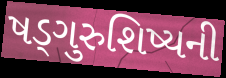
ષડ્ગુરુશિષ્યની